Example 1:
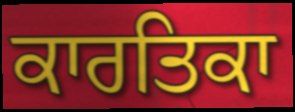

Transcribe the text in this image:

ਕਾਰਤਿਕਾ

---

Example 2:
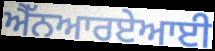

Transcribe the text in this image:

ਐੱਨਆਰਏਆਈ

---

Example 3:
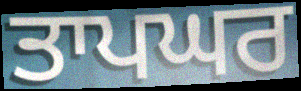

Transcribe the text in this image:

ਤਾਪਘਰ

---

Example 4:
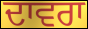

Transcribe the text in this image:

ਦਾਵਰਾ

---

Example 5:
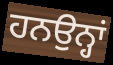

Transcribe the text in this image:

ਹਨਉਨ੍ਹਾਂ